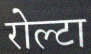
रोल्टा